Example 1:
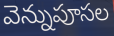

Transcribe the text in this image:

వెన్నుపూసల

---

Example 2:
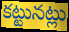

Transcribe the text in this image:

కట్టునట్లు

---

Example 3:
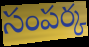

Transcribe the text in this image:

సంపర్క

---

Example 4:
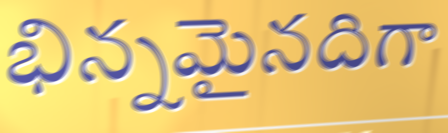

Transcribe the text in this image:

భిన్నమైనదిగా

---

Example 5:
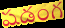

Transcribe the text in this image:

షడంగ